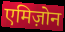
एमिज़ोन